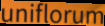
uniflorum